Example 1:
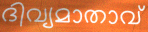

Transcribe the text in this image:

ദിവ്യമാതാവ്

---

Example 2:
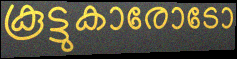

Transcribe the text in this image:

കൂട്ടുകാരോടോ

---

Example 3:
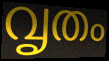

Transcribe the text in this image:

വൃതം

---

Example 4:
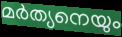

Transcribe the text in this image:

മർത്യനെയും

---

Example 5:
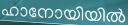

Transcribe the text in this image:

ഹാനോയിയിൽ